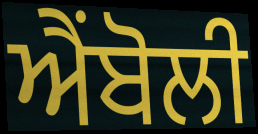
ਐਂਬੋਲੀ